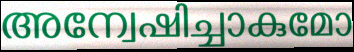
അന്വേഷിച്ചാകുമോ